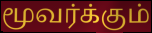
மூவர்க்கும்